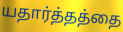
யதார்த்தத்தை